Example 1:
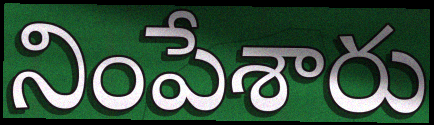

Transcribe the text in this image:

నింపేశారు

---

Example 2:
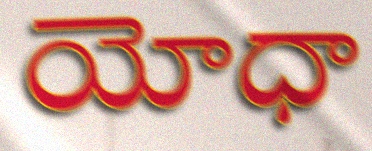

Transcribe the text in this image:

యోధా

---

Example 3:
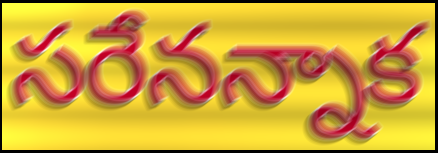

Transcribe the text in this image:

సరేనన్నాక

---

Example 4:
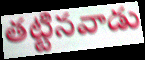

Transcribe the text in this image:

తట్టినవాడు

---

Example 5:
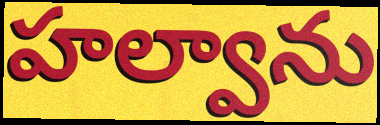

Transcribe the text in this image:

హల్వాను